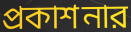
প্রকাশনার